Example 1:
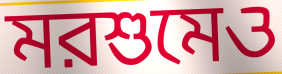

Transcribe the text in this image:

মরশুমেও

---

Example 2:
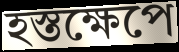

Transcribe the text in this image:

হস্তক্ষেপে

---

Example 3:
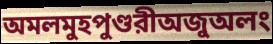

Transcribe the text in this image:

অমলমুহপুণ্ডরীঅজুঅলং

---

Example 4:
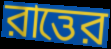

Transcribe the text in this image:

রাত্তের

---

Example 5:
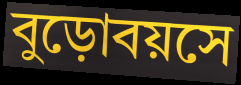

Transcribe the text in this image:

বুড়োবয়সে